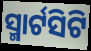
ସ୍ମାର୍ଟସିଟି